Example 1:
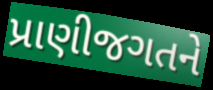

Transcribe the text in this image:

પ્રાણીજગતને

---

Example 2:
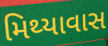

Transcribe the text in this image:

મિથ્યાવાસ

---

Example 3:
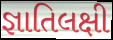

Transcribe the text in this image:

જ્ઞાતિલક્ષી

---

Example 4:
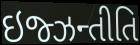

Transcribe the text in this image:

ઇજ્ઝન્તીતિ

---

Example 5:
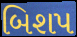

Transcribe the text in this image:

બિશપ